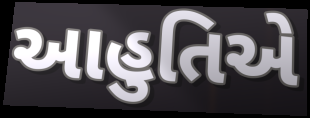
આહુતિએ